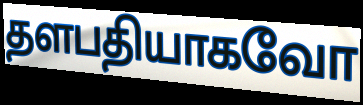
தளபதியாகவோ